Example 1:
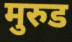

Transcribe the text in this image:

मुरुड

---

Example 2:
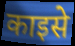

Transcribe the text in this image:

काइसे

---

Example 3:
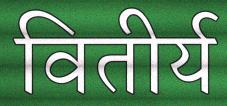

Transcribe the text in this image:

वितीर्य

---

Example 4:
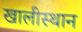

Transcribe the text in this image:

खालीस्थान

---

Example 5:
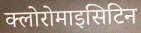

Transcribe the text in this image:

क्लोरोमाइसिटिन